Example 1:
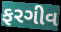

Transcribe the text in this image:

ફરગીવ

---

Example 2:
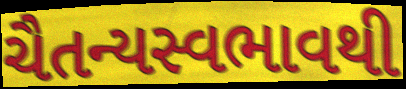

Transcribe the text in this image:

ચૈતન્યસ્વભાવથી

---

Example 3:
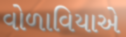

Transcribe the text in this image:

વોળાવિયાએ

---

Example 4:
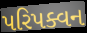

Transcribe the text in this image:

પરિપક્વન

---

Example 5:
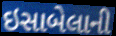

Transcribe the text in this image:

ઇસાબેલાની